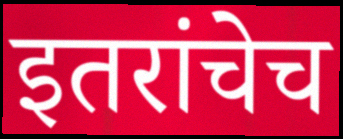
इतरांचेच